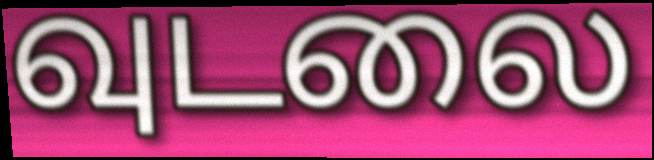
வுடலை